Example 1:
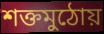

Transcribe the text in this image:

শক্তমুঠোয়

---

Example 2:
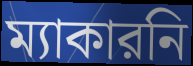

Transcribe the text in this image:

ম্যাকারনি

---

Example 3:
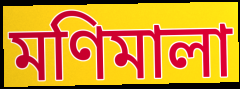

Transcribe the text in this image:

মণিমালা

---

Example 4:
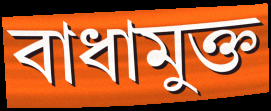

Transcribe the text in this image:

বাধামুক্ত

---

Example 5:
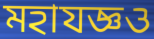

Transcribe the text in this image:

মহাযজ্ঞও